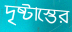
দৃষ্টাস্তের